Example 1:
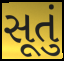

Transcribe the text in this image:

સૂતું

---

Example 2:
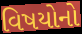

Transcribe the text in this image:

વિષયોનો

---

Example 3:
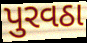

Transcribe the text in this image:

પુરવઠા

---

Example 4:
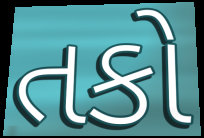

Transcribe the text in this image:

તકો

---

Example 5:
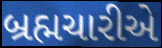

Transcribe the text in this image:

બ્રહ્મચારીએ